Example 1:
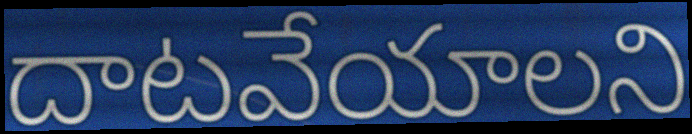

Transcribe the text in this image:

దాటవేయాలని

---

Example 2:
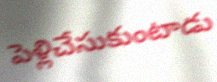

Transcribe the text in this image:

పెళ్లిచేసుకుంటాడు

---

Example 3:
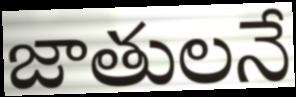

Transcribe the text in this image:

జాతులనే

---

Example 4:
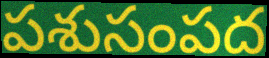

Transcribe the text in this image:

పశుసంపద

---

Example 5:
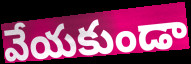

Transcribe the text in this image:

వేయకుండా